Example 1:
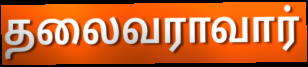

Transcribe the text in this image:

தலைவராவார்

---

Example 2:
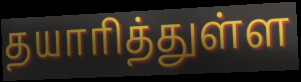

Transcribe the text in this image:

தயாரித்துள்ள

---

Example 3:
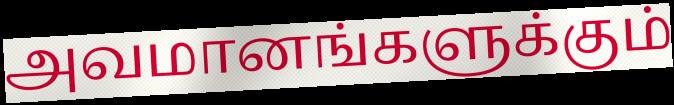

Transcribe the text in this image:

அவமானங்களுக்கும்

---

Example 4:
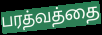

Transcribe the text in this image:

பரத்வத்தை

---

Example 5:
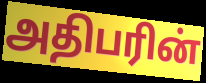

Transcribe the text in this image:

அதிபரின்